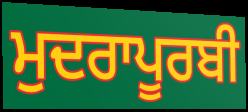
ਮੁਦਰਾਪੂਰਬੀ